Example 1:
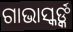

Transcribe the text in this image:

ଗାଭାସ୍କର୍ଙ୍କ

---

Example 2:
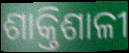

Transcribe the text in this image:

ଶାକ୍ତିଶାଳୀ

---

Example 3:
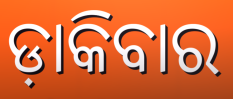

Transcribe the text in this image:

ଡ଼ାକିବାର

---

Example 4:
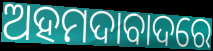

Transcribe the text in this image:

ଅହମଦାବାଦରେ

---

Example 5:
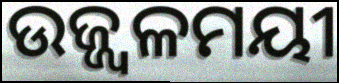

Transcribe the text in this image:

ଉଜ୍ଜ୍ୱଳମୟୀ